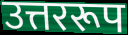
उत्तररूप